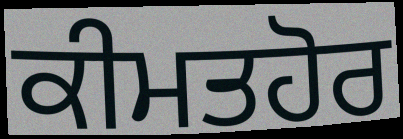
ਕੀਮਤਹੋਰ